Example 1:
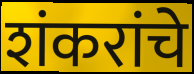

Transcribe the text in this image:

शंकरांचे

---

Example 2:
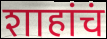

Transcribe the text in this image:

शाहांचं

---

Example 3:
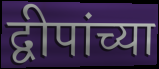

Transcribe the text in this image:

द्वीपांच्या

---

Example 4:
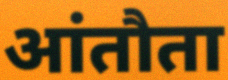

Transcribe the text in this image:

आंतौता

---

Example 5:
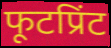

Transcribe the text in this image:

फूटप्रिंट